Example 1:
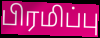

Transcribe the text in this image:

பிரமிப்பு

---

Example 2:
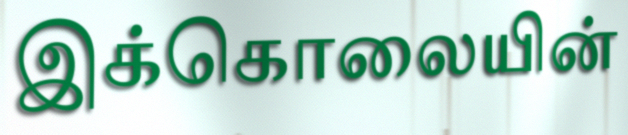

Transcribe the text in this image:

இக்கொலையின்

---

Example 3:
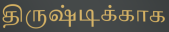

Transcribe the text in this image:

திருஷ்டிக்காக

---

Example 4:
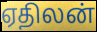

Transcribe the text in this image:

ஏதிலன்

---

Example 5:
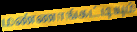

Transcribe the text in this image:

மண்ணாங்கட்டியும்